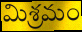
మిశ్రమం